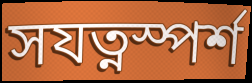
সযত্নস্পর্শ